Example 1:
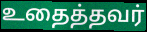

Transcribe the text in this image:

உதைத்தவர்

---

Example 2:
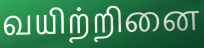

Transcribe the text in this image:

வயிற்றினை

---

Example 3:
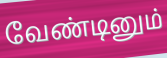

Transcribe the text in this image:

வேண்டினும்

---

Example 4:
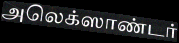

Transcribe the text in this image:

அலெக்ஸாண்டர்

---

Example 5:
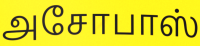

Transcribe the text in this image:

அசோபாஸ்